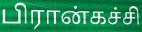
பிரான்கச்சி